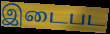
இடைபட